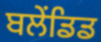
ਬਲੇਂਡਿਡ